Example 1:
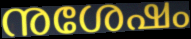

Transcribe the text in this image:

നുശേഷം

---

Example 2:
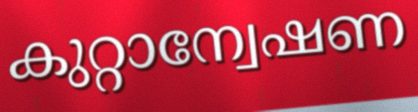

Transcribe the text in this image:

കുറ്റാന്വേഷണ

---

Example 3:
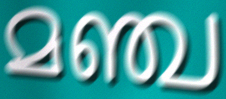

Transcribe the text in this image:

മഞ്ച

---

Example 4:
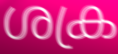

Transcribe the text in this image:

ശക്ര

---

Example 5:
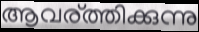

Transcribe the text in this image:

ആവര്ത്തിക്കുന്നു